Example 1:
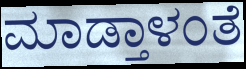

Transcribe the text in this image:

ಮಾಡ್ತಾಳಂತೆ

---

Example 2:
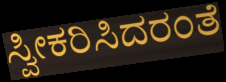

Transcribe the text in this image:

ಸ್ವೀಕರಿಸಿದರಂತೆ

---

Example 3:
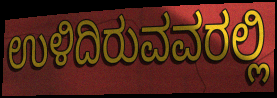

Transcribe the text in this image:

ಉಳಿದಿರುವವರಲ್ಲಿ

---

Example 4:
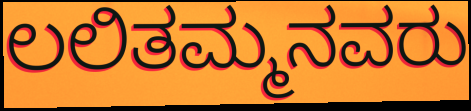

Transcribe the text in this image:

ಲಲಿತಮ್ಮನವರು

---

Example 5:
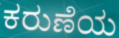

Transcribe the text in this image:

ಕರುಣೆಯ